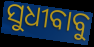
ସୁଧୀବାବୁ